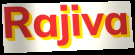
Rajiva